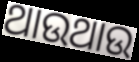
ଥାଉଥାଉ